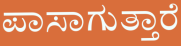
ಪಾಸಾಗುತ್ತಾರೆ